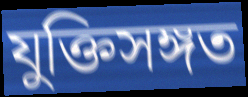
যুক্তিসঙ্গত